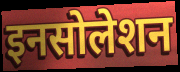
इनसोलेशन